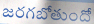
జరగబోతుందో